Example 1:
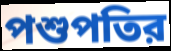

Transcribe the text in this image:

পশুপতির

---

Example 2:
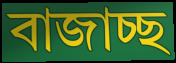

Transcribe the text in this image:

বাজাচ্ছ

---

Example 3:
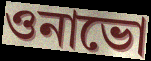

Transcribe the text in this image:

ওনাভো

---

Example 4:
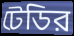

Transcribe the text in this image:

টেডির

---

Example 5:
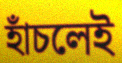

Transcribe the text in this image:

হাঁচলেই